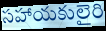
సహాయకులైరి